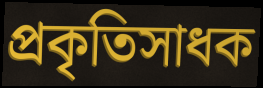
প্রকৃতিসাধক